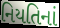
નિયતિનાં